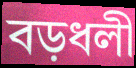
বড়ধলী